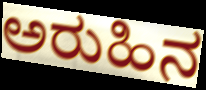
ಅರುಹಿನ